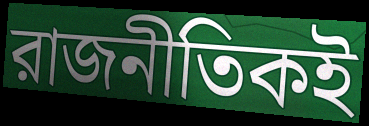
রাজনীতিকই